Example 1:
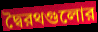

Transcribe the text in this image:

দ্বৈরথগুলোর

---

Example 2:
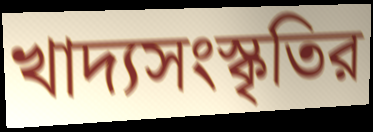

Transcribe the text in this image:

খাদ্যসংস্কৃতির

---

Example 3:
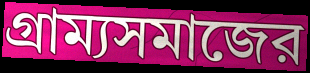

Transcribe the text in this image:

গ্রাম্যসমাজের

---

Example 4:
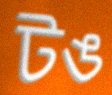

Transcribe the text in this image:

টঙ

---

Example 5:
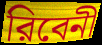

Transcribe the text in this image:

রিবেনী